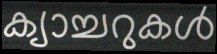
ക്യാച്ചറുകൾ